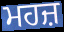
ਮਹਜ਼